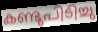
കണ്ടുപിടിച്ചു